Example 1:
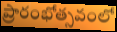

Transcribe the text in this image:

ప్రారంభోత్సవంలో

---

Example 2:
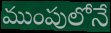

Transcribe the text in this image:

ముంపులోనే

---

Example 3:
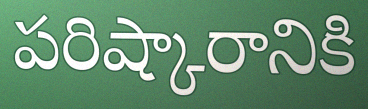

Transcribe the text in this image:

పరిష్కారానికి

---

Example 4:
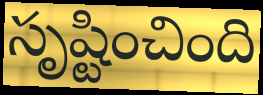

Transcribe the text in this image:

సృష్టించింది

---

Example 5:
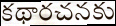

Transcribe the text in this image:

కథారచనకు